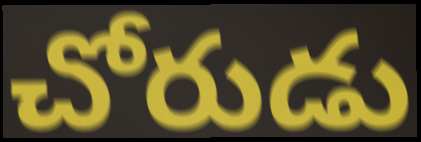
చోరుడు